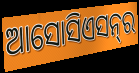
ଆସୋସିଏସନ୍‍ର